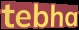
tebha